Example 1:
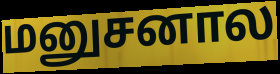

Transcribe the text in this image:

மனுசனால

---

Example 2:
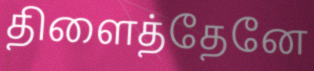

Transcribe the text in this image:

திளைத்தேனே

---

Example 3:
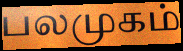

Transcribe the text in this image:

பலமுகம்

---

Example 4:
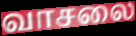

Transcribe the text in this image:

வாசலை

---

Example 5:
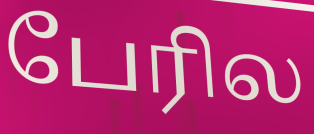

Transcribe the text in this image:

பேரில